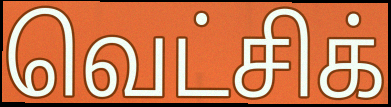
வெட்சிக்